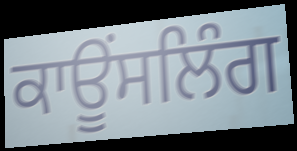
ਕਾਊਂਸਲਿੰਗ